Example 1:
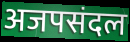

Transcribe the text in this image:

अजपसंदल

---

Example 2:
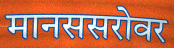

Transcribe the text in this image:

मानससरोवर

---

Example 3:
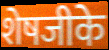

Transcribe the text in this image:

शेषजीके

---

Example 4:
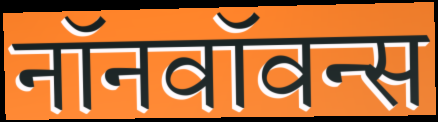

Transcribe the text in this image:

नॉनवॉवन्स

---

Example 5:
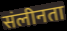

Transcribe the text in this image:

संलीनता